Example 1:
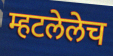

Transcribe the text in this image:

म्हटलेलेच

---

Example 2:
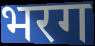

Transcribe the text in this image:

भरग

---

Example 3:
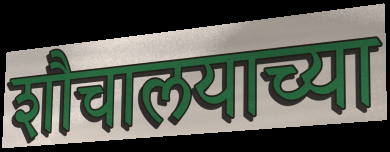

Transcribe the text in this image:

शौचालयाच्या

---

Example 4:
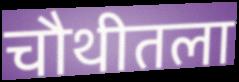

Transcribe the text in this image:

चौथीतला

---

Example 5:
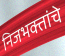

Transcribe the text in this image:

निजभक्तांचे